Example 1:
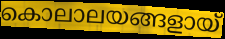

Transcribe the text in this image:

കൊലാലയങ്ങളായ്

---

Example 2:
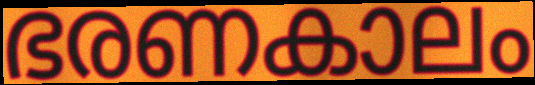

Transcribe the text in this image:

ഭരണകാലം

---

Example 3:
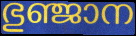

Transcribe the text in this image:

ഭുഞ്ജാന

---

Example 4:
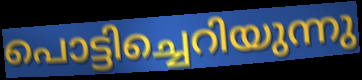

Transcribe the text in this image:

പൊട്ടിച്ചെറിയുന്നു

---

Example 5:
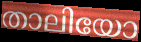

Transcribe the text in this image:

താലിയോ